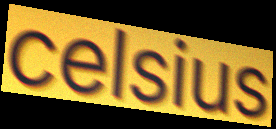
celsius